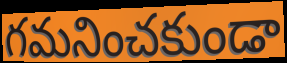
గమనించకుండా